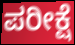
ಪರೀಕ್ಷೆ